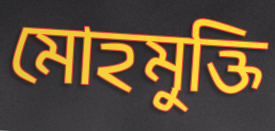
মোহমুক্তি